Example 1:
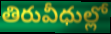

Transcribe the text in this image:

తిరువీధుల్లో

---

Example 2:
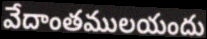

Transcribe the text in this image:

వేదాంతములయందు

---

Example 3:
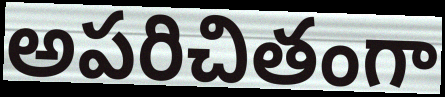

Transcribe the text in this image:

అపరిచితంగా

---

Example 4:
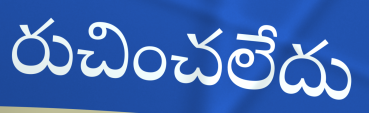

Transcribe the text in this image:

రుచించలేదు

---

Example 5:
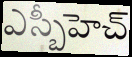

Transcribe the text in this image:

ఎస్బీహెచ్